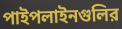
পাইপলাইনগুলির